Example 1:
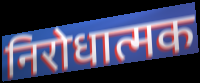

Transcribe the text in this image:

निरोधात्मक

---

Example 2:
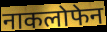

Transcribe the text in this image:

नाकलोफेन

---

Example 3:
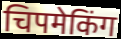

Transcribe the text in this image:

चिपमेकिंग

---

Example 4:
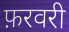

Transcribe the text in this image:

फ़रवरी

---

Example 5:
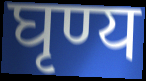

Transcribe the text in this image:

घृण्य